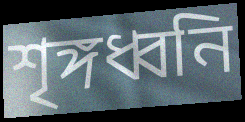
শৃঙ্গধ্বনি